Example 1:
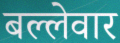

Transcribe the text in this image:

बल्लेवार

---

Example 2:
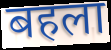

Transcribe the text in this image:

बहला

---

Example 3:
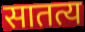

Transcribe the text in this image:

सातत्य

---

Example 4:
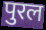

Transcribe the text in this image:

पुरल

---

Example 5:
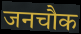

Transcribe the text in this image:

जनचौक